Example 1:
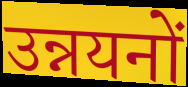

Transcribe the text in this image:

उन्नयनों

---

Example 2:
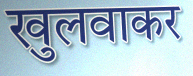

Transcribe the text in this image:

खुलवाकर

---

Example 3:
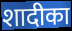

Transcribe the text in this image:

शादीका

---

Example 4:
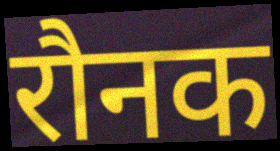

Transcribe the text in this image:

रौनक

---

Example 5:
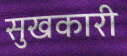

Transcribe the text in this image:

सुखकारी